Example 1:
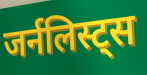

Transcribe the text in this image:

जर्नलिस्ट्स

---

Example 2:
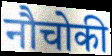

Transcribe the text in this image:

नौचोकी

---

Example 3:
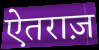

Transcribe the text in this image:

ऐतराज़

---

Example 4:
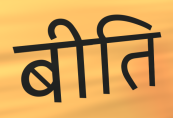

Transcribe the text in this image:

बीति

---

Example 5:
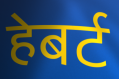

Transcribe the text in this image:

हेबर्ट